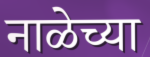
नाळेच्या